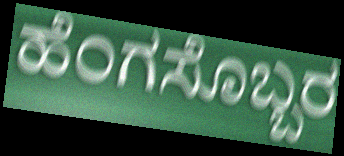
ಹೆಂಗಸೊಬ್ಬರ